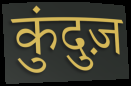
कुंदुज़